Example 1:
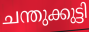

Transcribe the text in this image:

ചന്തുക്കുട്ടി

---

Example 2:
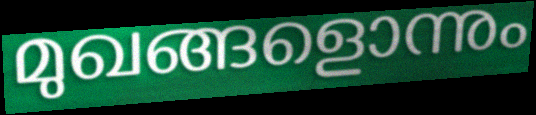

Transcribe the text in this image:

മുഖങ്ങളൊന്നും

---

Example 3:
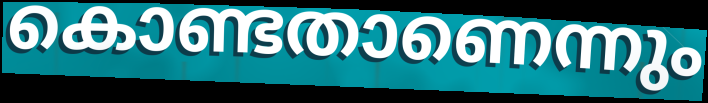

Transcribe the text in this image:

കൊണ്ടതാണെന്നും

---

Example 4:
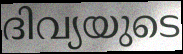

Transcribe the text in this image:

ദിവ്യയുടെ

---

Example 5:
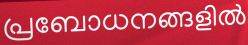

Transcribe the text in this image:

പ്രബോധനങ്ങളിൽ